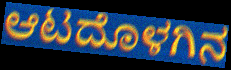
ಆಟದೊಳಗಿನ